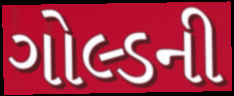
ગોલ્ડની